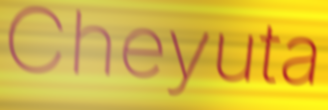
Cheyuta